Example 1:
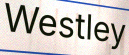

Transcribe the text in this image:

Westley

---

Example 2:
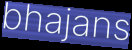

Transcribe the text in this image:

bhajans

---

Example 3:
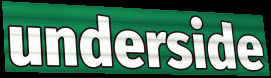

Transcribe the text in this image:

underside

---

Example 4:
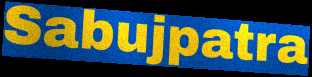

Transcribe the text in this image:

Sabujpatra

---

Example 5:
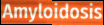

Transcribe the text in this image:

Amyloidosis